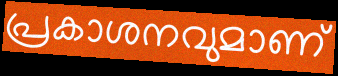
പ്രകാശനവുമാണ്